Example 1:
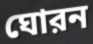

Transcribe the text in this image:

ঘোরন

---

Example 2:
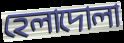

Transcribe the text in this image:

হেলাদোলা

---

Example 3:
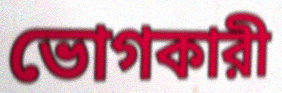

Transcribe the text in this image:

ভোগকারী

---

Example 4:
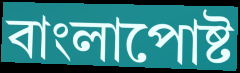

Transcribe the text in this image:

বাংলাপোষ্ট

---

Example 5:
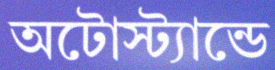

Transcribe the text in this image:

অটোস্ট্যান্ডে